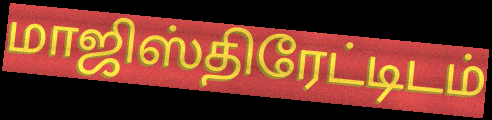
மாஜிஸ்திரேட்டிடம்